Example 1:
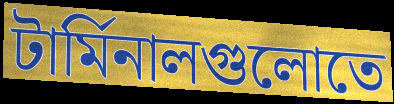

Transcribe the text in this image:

টার্মিনালগুলোতে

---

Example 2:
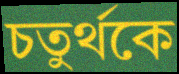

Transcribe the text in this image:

চতুর্থকে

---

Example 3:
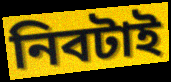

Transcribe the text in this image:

নিবটাই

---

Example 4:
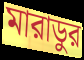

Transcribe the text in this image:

মারাডুর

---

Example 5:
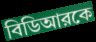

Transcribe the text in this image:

বিডিআরকে